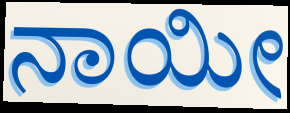
ನಾಯೀ